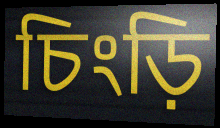
চিংড়ি